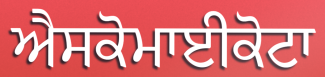
ਐਸਕੋਮਾਈਕੋਟਾ